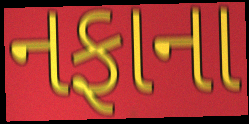
નફાના